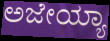
ಅಜೇಯ್ಯಾ